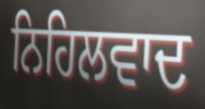
ਨਿਹਿਲਵਾਦ